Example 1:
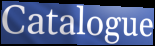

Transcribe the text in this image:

Catalogue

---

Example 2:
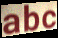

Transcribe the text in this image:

abc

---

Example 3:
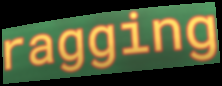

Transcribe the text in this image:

ragging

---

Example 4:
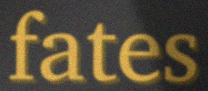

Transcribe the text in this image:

fates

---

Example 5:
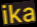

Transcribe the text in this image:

ika